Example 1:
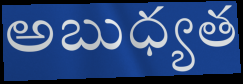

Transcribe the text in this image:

అబుధ్యత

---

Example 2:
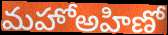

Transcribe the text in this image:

మహోఅహిణో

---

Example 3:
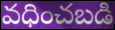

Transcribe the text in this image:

వధించబడి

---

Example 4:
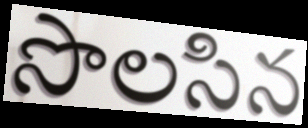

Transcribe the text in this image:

సొలసిన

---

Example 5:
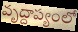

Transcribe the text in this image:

వృద్దాప్యంలో